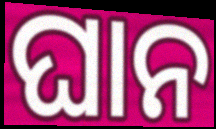
ଘାନ